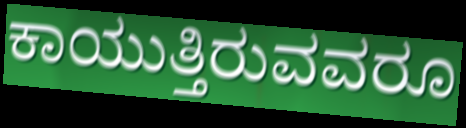
ಕಾಯುತ್ತಿರುವವರೂ